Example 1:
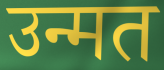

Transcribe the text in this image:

उन्मत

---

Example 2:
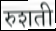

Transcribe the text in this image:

रुशती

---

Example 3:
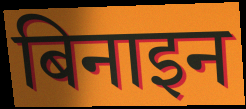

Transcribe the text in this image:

बिनाइन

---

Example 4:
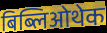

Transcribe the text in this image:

बिब्लिओथेक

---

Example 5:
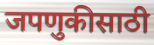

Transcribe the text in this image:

जपणुकीसाठी